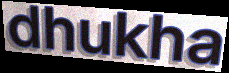
dhukha